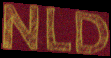
NLD